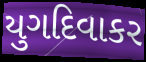
યુગદિવાકર